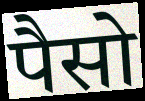
पैसो